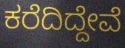
ಕರೆದಿದ್ದೇವೆ